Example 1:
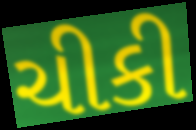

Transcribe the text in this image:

ચીકી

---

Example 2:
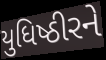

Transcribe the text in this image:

યુધિષ્ઠીરને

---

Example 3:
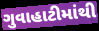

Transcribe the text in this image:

ગુવાહાટીમાંથી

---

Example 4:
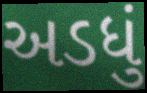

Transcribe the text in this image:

અડધું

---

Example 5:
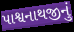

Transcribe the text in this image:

પાશ્વનાથજીનું